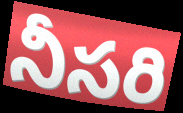
నీసరి